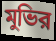
মুভির